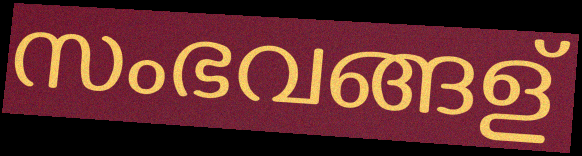
സംഭവങ്ങള്